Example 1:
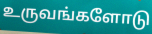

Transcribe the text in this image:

உருவங்களோடு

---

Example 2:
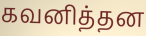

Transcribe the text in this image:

கவனித்தன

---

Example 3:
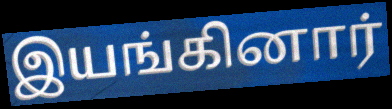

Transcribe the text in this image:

இயங்கினார்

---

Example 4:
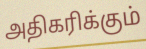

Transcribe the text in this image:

அதிகரிக்கும்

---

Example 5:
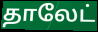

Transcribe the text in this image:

தாலேட்